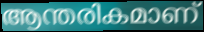
ആന്തരികമാണ്